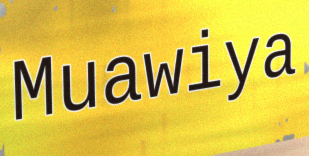
Muawiya